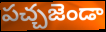
పచ్చజెండా